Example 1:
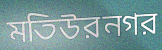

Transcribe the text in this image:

মতিউরনগর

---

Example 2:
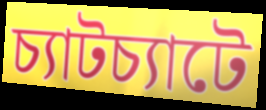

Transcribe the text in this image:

চ্যাটচ্যাটে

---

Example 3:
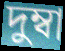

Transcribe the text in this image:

দুম্বা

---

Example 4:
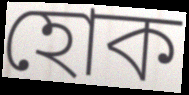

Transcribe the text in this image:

হোক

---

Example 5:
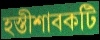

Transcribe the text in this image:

হস্তীশাবকটি